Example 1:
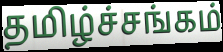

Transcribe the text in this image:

தமிழ்ச்சங்கம்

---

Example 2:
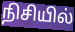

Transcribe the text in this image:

நிசியில்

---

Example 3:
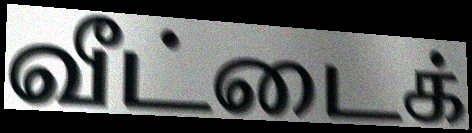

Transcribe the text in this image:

வீட்டைக்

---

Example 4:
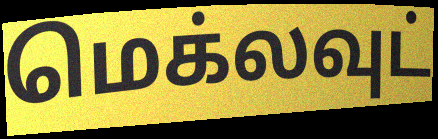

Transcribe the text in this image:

மெக்லவுட்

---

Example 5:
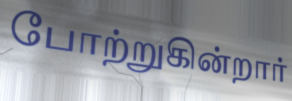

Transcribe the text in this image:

போற்றுகின்றார்